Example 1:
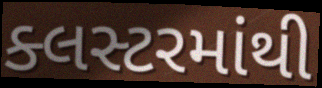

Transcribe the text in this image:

ક્લસ્ટરમાંથી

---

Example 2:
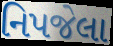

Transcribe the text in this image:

નિપજેલા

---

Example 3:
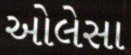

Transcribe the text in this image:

ઓલેસા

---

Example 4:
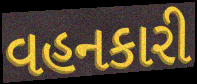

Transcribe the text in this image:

વહનકારી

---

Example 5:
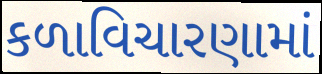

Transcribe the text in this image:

કળાવિચારણામાં